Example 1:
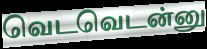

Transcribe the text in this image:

வெடவெடன்னு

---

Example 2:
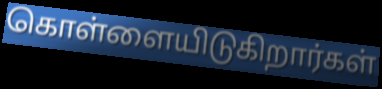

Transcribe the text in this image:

கொள்ளையிடுகிறார்கள்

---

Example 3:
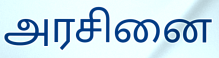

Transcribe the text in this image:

அரசினை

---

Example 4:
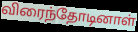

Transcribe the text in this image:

விரைந்தோடினாள்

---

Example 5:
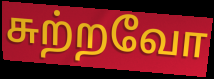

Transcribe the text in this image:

சுற்றவோ